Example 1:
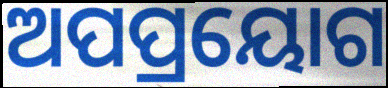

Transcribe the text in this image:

ଅପପ୍ରୟୋଗ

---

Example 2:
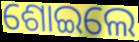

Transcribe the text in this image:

ଶୋଇଲେ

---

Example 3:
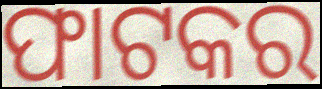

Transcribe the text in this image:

ଫାଟକର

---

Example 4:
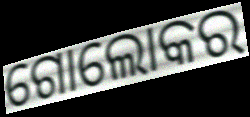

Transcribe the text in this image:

ଗୋଲୋକର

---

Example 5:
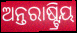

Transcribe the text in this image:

ଅନ୍ତରାଷ୍ଟ୍ରିୟ